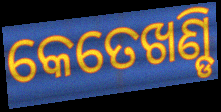
କେତେଖଣ୍ଡି